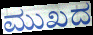
ಮುಖದ